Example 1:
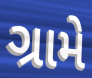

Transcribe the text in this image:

ગ્રામે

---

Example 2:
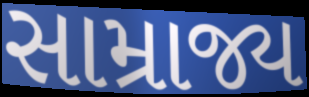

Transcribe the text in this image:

સામ્રાજ્ય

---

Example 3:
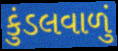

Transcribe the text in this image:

કુંડલવાળું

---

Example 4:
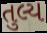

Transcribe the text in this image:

તુલ્ય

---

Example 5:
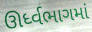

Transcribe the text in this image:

ઊર્ધ્વભાગમાં